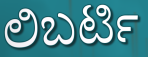
ಲಿಬರ್ಟಿ